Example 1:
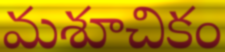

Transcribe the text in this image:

మశూచికం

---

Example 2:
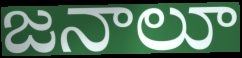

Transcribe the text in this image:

జనాలూ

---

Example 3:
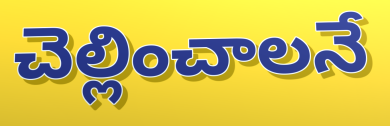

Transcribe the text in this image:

చెల్లించాలనే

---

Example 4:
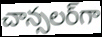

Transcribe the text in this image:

చాన్సలర్‌గా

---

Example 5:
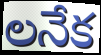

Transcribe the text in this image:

లనేక